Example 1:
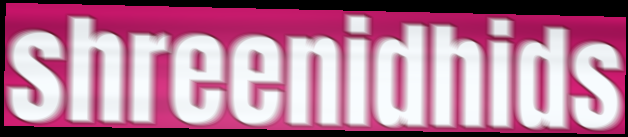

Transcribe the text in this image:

shreenidhids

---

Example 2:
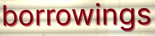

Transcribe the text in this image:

borrowings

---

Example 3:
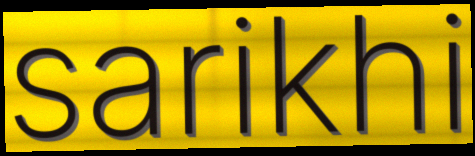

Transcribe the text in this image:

sarikhi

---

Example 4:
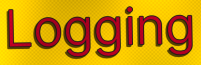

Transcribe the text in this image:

Logging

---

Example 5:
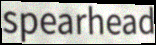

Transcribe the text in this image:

spearhead